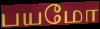
பயமோ